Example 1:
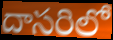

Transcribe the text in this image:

దాసరిలో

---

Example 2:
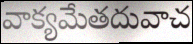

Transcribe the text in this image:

వాక్యమేతదువాచ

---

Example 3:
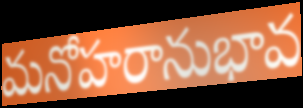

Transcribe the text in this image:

మనోహరానుభావ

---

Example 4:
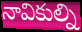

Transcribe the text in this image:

నావికుల్ని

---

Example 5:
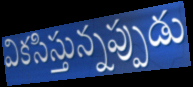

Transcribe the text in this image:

వికసిస్తున్నప్పుడు